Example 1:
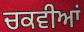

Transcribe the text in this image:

ਚਕਵੀਆਂ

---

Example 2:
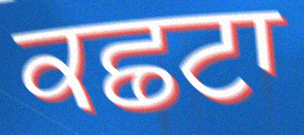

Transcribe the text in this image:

ਕਛਟਾ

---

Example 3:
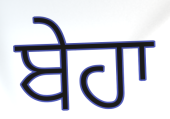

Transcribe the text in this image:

ਬੇਹਾ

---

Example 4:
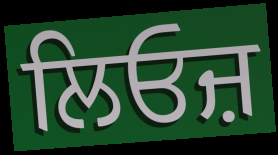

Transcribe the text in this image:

ਲਿਓਜ਼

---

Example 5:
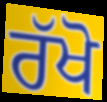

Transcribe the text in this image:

ਰੱਖੋ